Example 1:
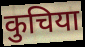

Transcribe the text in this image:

कुचिया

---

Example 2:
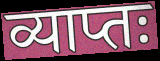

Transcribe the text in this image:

व्याप्तः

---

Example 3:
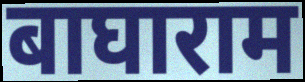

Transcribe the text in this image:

बाघाराम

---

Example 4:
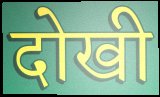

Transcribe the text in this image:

दोखी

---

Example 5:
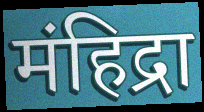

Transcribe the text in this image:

मंहिद्रा